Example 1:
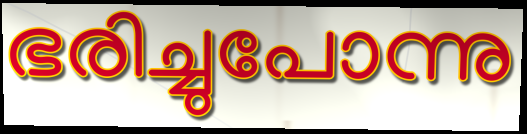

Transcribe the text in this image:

ഭരിച്ചുപോന്നു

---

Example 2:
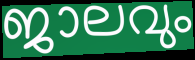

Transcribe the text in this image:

ജാലവും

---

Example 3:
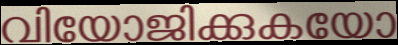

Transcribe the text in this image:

വിയോജിക്കുകയോ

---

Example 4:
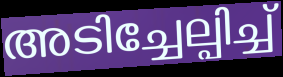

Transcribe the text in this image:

അടിച്ചേല്പിച്ച്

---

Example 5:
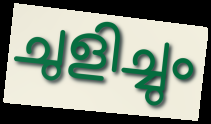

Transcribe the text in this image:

ചുളിച്ചും